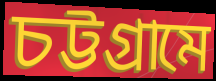
চট্টগ্রামে